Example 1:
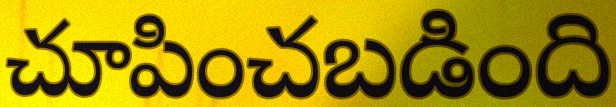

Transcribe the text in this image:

చూపించబడింది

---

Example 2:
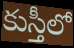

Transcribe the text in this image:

కుస్తీలో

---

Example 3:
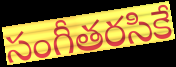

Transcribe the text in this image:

సంగీతరసికే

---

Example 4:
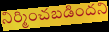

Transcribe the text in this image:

నిర్మించబడిందని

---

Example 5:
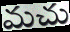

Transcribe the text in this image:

మచు